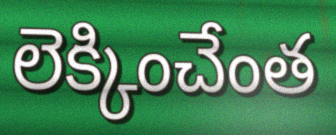
లెక్కించేంత